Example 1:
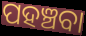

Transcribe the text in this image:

ପହଞ୍ଚବା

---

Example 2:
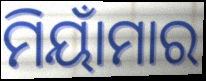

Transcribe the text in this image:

ମିୟାଁମାର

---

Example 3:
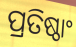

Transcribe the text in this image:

ପ୍ରତିଷ୍ଠାଂ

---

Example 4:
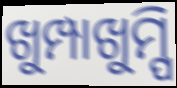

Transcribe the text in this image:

ଖୁମ୍ପାଖୁମ୍ପି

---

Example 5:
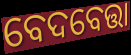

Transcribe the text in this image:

ବେଦବେତ୍ତା